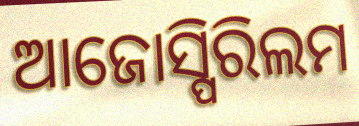
ଆଜୋସ୍ପିରିଲମ